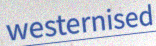
westernised